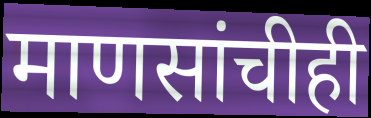
माणसांचीही